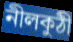
নীলকুঠী